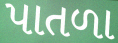
પાતળા